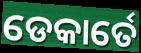
ଡେକାର୍ତେ